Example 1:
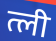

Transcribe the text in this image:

त्ली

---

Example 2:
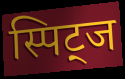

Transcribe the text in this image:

स्पिट्ज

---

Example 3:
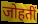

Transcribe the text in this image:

जोहतीं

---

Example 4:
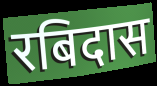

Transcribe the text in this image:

रबिदास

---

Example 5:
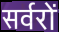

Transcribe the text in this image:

सर्वरों